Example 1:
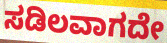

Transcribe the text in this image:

ಸಡಿಲವಾಗದೇ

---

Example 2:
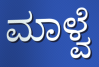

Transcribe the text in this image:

ಮಾಳ್ವೆ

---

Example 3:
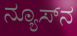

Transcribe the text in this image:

ನ್ಯೂಸ್‌ನ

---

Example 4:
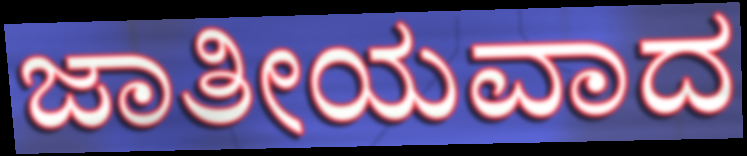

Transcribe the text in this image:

ಜಾತೀಯವಾದ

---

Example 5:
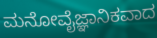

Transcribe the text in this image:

ಮನೋವೈಜ್ಞಾನಿಕವಾದ